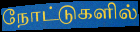
நோட்டுகளில்